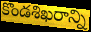
కొండశిఖరాన్ని